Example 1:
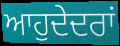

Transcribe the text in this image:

ਆਹੁਦੇਦਰਾਂ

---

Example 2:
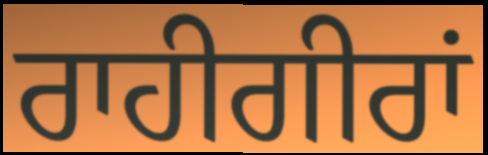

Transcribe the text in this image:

ਰਾਹੀਗੀਰਾਂ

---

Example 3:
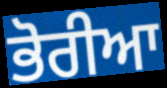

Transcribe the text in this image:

ਭੋਰੀਆ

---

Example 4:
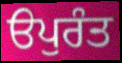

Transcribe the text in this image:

ੳਪੁਰੰਤ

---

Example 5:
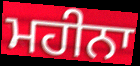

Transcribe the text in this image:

ਮਹੀਨਾ